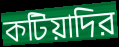
কটিয়াদির